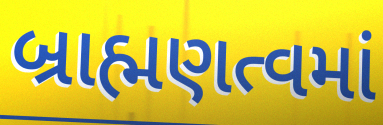
બ્રાહ્મણત્વમાં